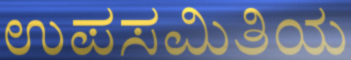
ಉಪಸಮಿತಿಯ